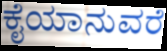
ಕೈಯಾನುವರೆ